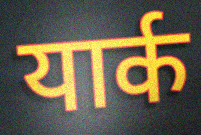
यार्क